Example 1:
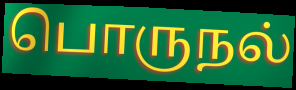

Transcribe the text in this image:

பொருநல்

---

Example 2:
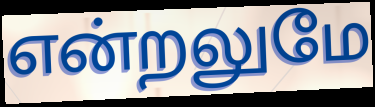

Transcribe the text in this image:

என்றலுமே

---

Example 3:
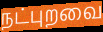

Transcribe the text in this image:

நட்புறவை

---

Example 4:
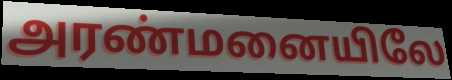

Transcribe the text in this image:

அரண்மனையிலே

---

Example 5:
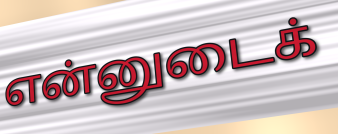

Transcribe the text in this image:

என்னுடைக்